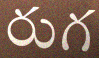
రుగ